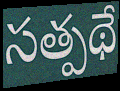
సత్పథే